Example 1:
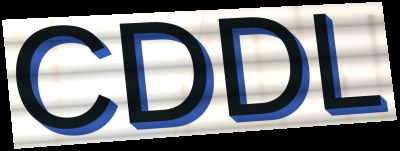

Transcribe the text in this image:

CDDL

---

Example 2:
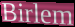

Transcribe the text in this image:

Birlem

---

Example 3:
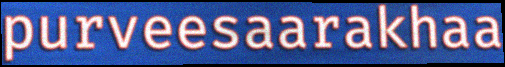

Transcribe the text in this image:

purveesaarakhaa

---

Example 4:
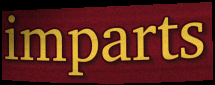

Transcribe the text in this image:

imparts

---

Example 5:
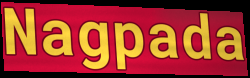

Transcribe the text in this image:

Nagpada